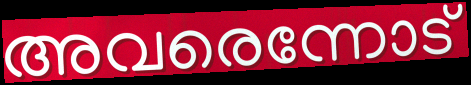
അവരെന്നോട്